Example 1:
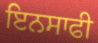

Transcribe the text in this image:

ਇਨਸਾਫੀ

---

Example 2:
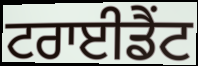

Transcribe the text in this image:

ਟਰਾਈਡੈਂਟ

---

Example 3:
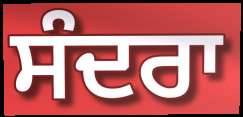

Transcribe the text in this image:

ਸੰਦਰਾ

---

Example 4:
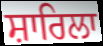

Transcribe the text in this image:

ਸ਼ਾਰਿਲਾ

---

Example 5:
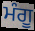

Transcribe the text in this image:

ਮੰਗੂ